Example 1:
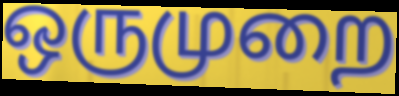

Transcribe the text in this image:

ஒருமுறை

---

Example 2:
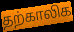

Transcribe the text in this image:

தற்காலிக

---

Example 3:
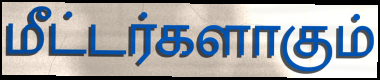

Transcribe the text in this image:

மீட்டர்களாகும்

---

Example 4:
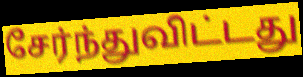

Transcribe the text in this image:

சேர்ந்துவிட்டது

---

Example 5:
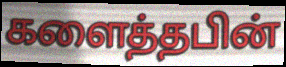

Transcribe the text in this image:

களைத்தபின்